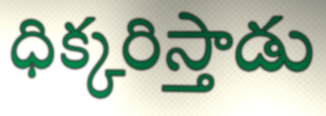
ధిక్కరిస్తాడు